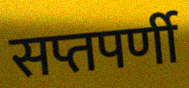
सप्तपर्णी